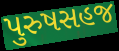
પુરુષસહજ